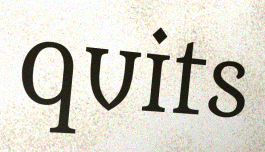
quits